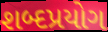
શબ્દપ્રયોગ